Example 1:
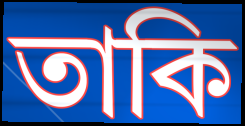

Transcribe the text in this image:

তাকি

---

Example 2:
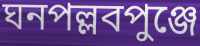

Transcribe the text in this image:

ঘনপল্লবপুঞ্জে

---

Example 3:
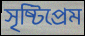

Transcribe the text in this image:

সৃষ্টিপ্রেম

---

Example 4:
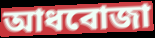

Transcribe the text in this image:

আধবোজা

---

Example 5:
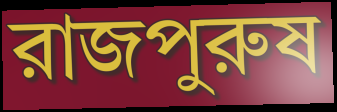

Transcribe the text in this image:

রাজপুরুষ